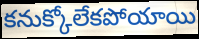
కనుక్కోలేకపోయాయి